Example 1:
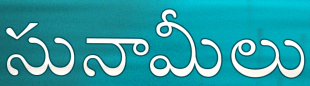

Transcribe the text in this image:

సునామీలు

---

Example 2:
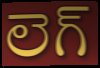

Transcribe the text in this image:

లెగ్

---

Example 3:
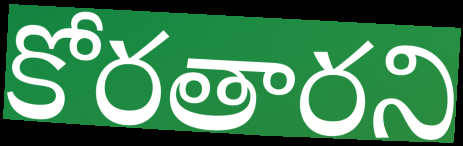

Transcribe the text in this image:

కోరతారని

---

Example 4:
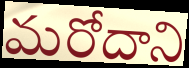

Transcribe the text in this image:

మరోదాని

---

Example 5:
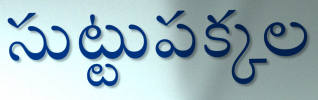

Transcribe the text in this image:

సుట్టుపక్కల